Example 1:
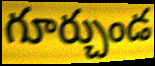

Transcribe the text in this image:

గూర్చుండ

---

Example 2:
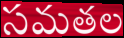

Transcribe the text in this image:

సమతల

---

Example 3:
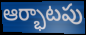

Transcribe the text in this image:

ఆర్భాటపు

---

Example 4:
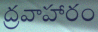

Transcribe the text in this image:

ద్రవాహారం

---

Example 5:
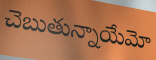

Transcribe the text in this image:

చెబుతున్నాయేమో